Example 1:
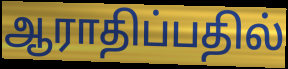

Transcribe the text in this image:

ஆராதிப்பதில்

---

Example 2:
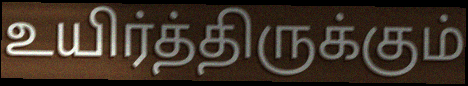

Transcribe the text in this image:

உயிர்த்திருக்கும்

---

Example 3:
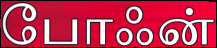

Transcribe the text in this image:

போஃன்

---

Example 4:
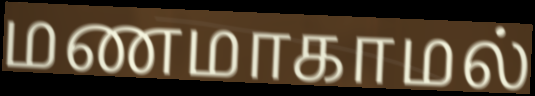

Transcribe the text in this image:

மணமாகாமல்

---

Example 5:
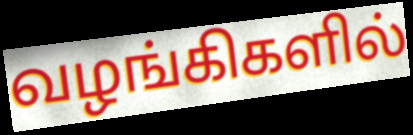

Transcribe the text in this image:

வழங்கிகளில்